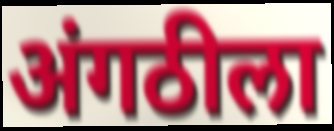
अंगठीला